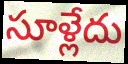
సూళ్లేదు